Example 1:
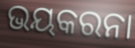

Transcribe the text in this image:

ଭୟକରନା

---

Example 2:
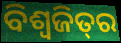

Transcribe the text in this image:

ବିଶ୍ୱଜିତ୍‌ର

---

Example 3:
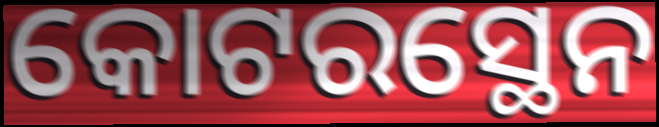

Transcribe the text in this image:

କୋଟରସ୍ଥେନ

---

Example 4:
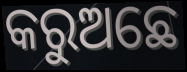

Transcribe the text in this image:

କରୁଅଛେ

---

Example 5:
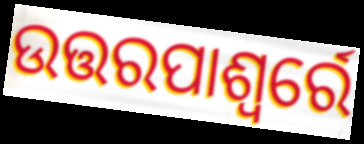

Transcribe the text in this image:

ଉତ୍ତରପାଶ୍ୱର୍ରେ